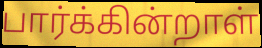
பார்க்கின்றாள்